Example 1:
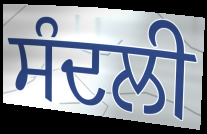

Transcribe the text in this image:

ਸੰਦਲੀ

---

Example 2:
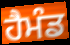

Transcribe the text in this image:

ਹੈਮੰਡ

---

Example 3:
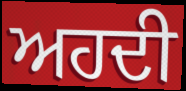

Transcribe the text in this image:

ਅਹਦੀ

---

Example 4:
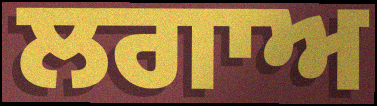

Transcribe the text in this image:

ਲਗਾਅ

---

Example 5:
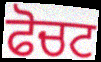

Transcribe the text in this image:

ਫੋਚਟ